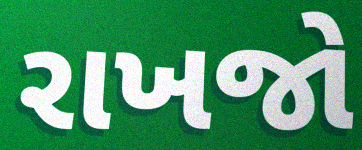
રાખજો